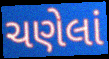
ચણેલાં